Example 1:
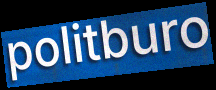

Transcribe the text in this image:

politburo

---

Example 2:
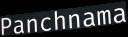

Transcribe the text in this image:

Panchnama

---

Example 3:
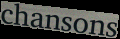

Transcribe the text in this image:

chansons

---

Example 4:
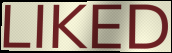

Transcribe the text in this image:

LIKED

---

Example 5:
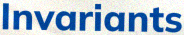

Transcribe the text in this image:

Invariants